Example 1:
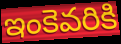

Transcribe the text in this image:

ఇంకెవరికి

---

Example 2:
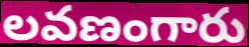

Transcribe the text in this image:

లవణంగారు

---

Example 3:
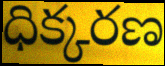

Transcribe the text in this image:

ధిక్కరణ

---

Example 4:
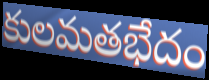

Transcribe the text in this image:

కులమతభేదం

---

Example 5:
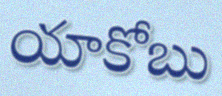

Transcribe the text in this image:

యాకోబు